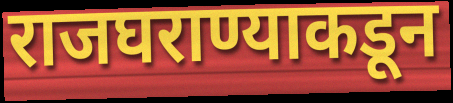
राजघराण्याकडून